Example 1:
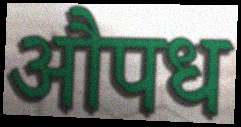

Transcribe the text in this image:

औपध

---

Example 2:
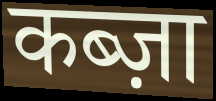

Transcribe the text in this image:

कब्ज़ा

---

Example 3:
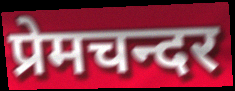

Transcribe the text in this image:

प्रेमचन्दर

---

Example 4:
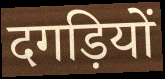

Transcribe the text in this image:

दगड़ियों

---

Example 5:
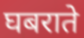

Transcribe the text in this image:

घबराते